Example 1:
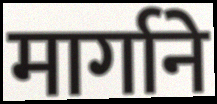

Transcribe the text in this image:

मार्गाने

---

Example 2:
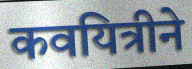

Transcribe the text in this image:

कवयित्रीने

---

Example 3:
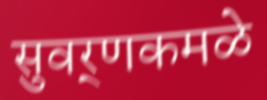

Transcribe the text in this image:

सुवर्णकमळे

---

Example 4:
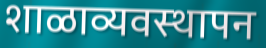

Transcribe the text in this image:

शाळाव्यवस्थापन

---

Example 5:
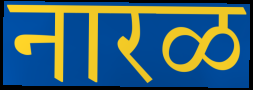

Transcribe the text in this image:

नारळ